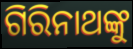
ଗିରିନାଥଙ୍କୁ